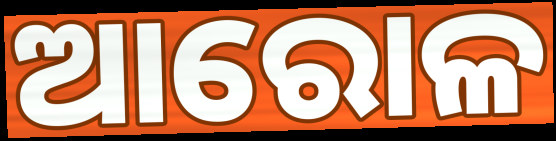
ଆରୋଳ